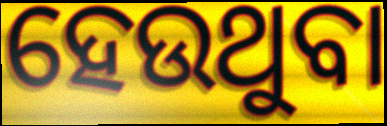
ହେଉଥୁବା